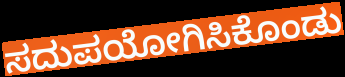
ಸದುಪಯೋಗಿಸಿಕೊಂಡು